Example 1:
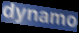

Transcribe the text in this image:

dynamo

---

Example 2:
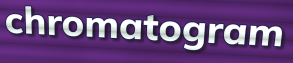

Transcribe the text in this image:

chromatogram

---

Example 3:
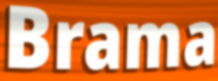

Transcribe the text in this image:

Brama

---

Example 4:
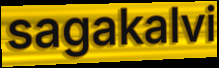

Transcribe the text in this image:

sagakalvi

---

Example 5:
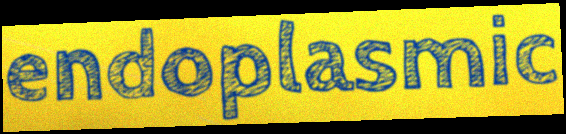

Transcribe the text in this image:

endoplasmic